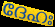
ദേഹഃ